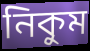
নিকুম